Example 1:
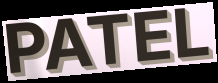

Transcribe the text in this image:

PATEL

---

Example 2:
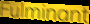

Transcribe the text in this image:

Fulminant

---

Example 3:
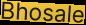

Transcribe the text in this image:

Bhosale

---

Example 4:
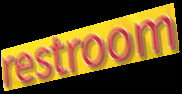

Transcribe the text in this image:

restroom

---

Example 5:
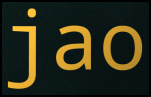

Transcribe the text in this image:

jao